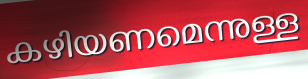
കഴിയണമെന്നുള്ള